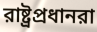
রাষ্ট্রপ্রধানরা